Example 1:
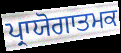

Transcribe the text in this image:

ਪ੍ਰਾਯੋਗਾਤਮਕ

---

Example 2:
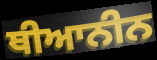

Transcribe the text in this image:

ਥੀਆਨੀਨ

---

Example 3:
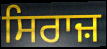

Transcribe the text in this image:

ਸਿਰਾਜ਼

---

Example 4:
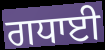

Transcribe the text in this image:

ਗਧਾਈ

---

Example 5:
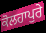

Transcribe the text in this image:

ਕੋਲਹਾਪੁਰੇ